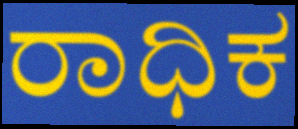
ರಾಧಿಕ